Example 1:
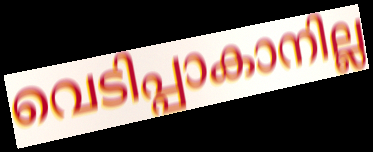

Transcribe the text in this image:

വെടിപ്പാകാനില്ല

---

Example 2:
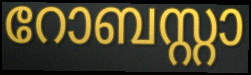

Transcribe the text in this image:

റോബസ്റ്റാ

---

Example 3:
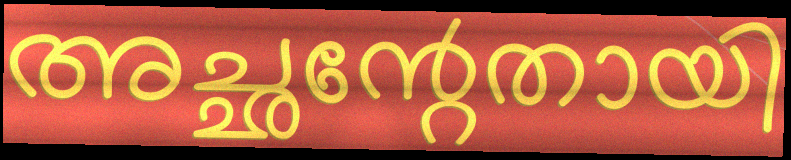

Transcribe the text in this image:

അച്ഛന്റേതായി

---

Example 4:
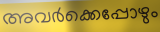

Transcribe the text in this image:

അവർക്കെപ്പോഴും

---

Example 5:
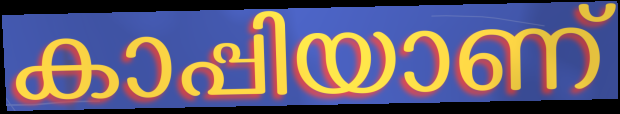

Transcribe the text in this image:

കാപ്പിയാണ്